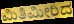
ಮಿತಿಮೀರಿದ